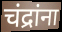
चंद्रांना